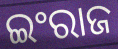
ଇଂରାଜ